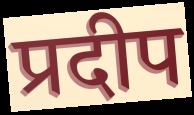
प्रदीप